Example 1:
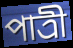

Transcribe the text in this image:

পাত্রী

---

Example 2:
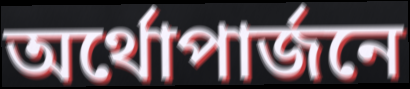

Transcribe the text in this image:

অর্থোপার্জনে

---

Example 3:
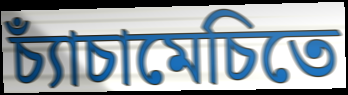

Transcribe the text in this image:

চ্যাঁচামেচিতে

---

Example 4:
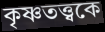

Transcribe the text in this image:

কৃষ্ণতত্ত্বকে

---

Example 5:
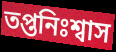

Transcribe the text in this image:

তপ্তনিঃশ্বাস